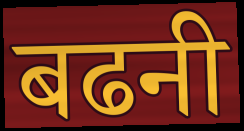
बढनी